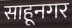
साहूनगर